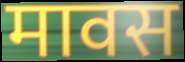
मावस